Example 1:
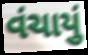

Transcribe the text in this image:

વંચાયું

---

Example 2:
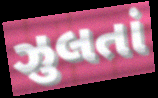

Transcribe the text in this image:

ઝુલતાં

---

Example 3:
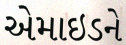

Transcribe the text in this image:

એમાઇડને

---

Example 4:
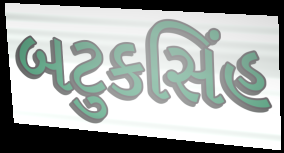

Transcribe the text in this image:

બટુકસિંહ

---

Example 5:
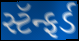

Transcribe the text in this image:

સ્ટૅન્ફર્ડ